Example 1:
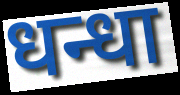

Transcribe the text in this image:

धन्धा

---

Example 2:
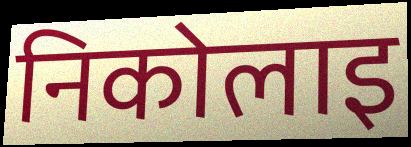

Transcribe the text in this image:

निकोलाइ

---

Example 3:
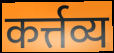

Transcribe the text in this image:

कर्त्तव्य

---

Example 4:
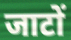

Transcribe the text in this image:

जाटों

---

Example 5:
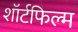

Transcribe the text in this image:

शॉर्टफिल्म